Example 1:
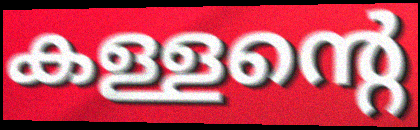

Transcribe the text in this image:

കള്ളന്റെ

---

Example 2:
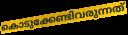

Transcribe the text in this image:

കൊടുക്കേണ്ടിവരുന്നത്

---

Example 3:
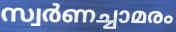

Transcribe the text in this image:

സ്വർണച്ചാമരം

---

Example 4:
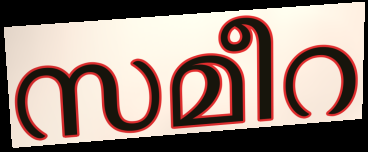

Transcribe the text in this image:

സമീറ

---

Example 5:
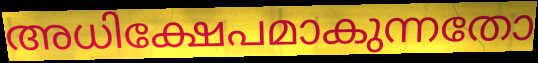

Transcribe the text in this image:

അധിക്ഷേപമാകുന്നതോ